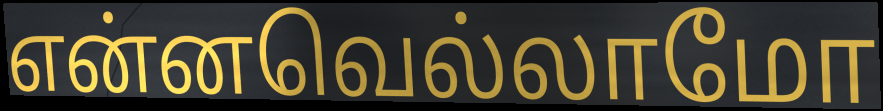
என்னவெல்லாமோ